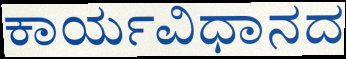
ಕಾರ್ಯವಿಧಾನದ